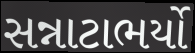
સન્નાટાભર્યો